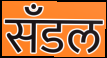
सँडल